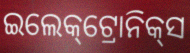
ଇଲେକ୍‌ଟ୍ରୋନିକ୍‌ସ